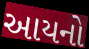
આયનો